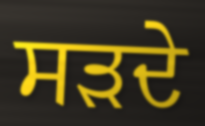
ਸੜਦੇ